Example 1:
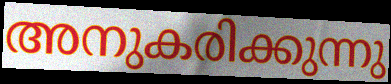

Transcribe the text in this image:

അനുകരിക്കുന്നു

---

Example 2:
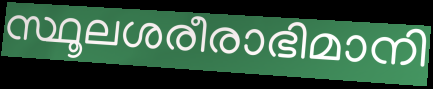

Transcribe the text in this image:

സ്ഥൂലശരീരാഭിമാനി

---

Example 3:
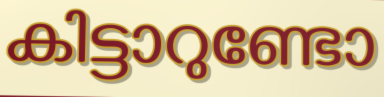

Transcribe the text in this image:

കിട്ടാറുണ്ടോ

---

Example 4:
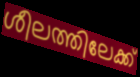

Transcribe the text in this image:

ശീലത്തിലേക്ക്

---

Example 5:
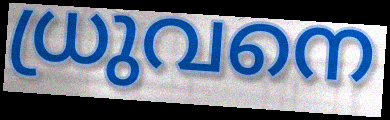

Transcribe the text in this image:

ധ്രുവനെ